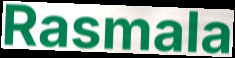
Rasmala